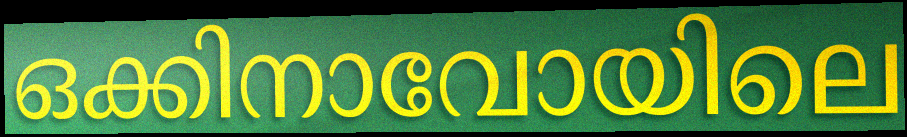
ഒക്കിനാവോയിലെ